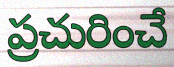
ప్రచురించే